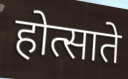
होत्साते